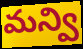
మన్వి